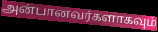
அன்பானவர்களாகவும்